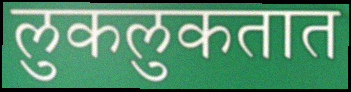
लुकलुकतात